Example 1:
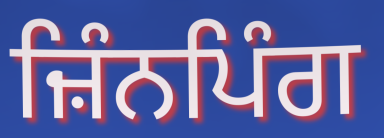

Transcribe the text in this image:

ਜ਼ਿੰਨਪਿੰਗ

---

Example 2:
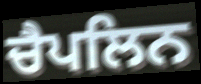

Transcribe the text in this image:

ਚੈਪਲਿਨ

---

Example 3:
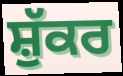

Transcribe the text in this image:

ਸ਼ੁੱਕਰ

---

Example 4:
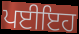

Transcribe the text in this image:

ਪਈਇਹ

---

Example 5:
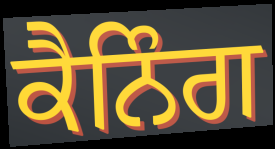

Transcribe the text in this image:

ਕੈਨਿੰਗ